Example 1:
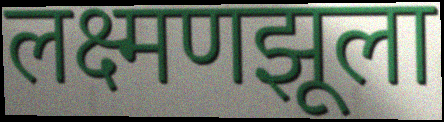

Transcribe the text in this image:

लक्ष्मणझूला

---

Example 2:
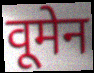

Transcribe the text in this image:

वूमेन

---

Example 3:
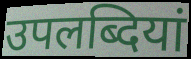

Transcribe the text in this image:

उपलब्दियां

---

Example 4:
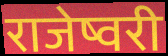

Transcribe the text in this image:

राजेष्वरी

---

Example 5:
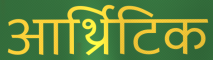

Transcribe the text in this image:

आर्थ्रिटिक